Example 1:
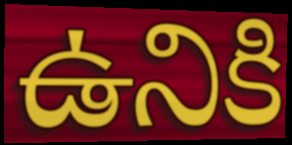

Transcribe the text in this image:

ఉనికి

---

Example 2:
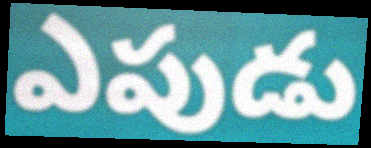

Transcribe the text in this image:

ఎపుడు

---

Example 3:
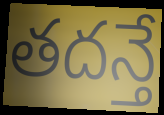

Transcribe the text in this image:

తదన్తే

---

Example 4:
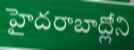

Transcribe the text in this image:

హైదరాబాద్లోని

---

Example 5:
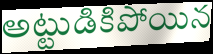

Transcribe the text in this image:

అట్టుడికిపోయిన